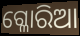
ଗ୍ଳୋରିଆ